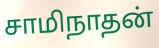
சாமிநாதன்